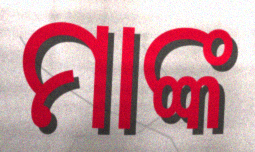
ମାଙ୍କ